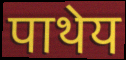
पाथेय